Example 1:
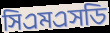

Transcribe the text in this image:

সিএমএসডি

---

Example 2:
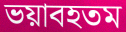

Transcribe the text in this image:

ভয়াবহতম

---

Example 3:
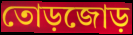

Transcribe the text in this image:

তোড়জোড়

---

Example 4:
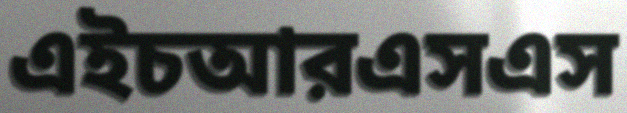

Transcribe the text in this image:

এইচআরএসএস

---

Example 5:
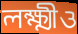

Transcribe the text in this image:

লক্ষ্মীও